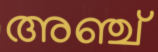
അഞ്ച്